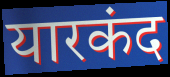
यारकंद